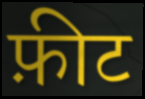
फ़ीट